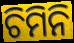
ଚିମିନି